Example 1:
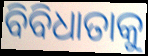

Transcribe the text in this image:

ବିବିଧାତାକୁ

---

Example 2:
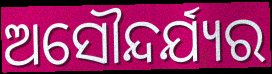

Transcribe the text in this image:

ଅସୌନ୍ଦର୍ଯ୍ୟର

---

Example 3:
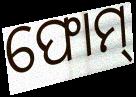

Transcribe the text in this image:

ଫୋମ୍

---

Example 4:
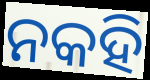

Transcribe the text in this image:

ନକହି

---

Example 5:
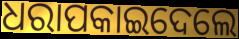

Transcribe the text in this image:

ଧରାପକାଇଦେଲେ